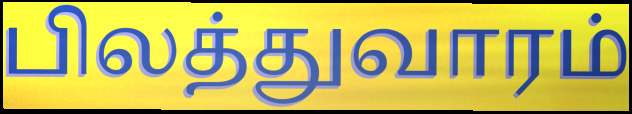
பிலத்துவாரம்